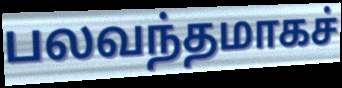
பலவந்தமாகச்